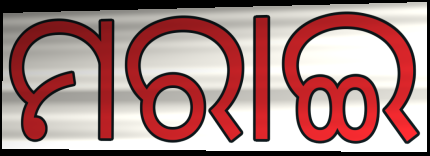
ମରାଇ